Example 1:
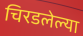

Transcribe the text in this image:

चिरडलेल्या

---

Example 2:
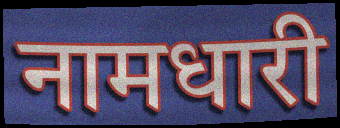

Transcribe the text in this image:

नामधारी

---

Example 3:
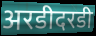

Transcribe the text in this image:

अरडीदरडी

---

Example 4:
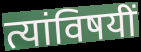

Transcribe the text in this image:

त्यांविषयीं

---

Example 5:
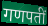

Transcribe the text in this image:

गणपतीं